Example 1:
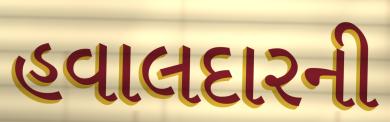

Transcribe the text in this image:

હવાલદારની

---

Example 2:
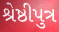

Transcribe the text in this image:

શ્રેષ્ઠીપુત્ર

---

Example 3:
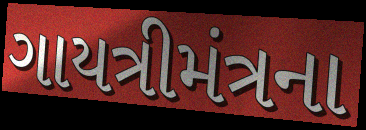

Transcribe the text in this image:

ગાયત્રીમંત્રના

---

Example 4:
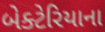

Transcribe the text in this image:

બેક્ટેરિયાના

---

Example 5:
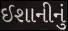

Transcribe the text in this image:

ઈશાનીનું